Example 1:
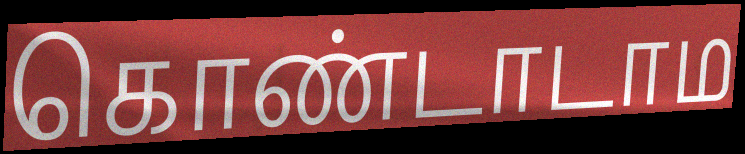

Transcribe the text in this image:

கொண்டாடாம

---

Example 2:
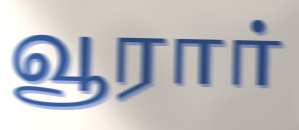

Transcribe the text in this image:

வூரார்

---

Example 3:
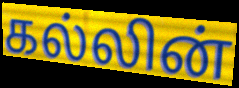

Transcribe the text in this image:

கல்லின்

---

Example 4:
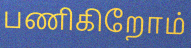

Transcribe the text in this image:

பணிகிறோம்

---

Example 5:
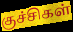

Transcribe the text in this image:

குச்சிகள்